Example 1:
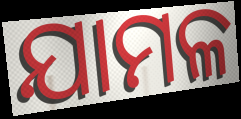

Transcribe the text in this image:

ଯାମଳ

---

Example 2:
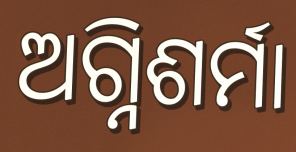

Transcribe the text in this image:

ଅଗ୍ନିଶର୍ମା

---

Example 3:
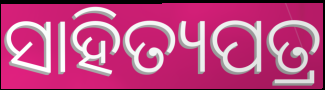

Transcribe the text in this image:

ସାହିତ୍ୟପତ୍ର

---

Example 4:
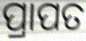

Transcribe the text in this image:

ପ୍ରାପତ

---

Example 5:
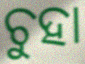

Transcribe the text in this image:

ଚୁହା